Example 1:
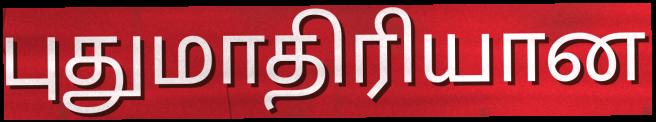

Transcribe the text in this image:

புதுமாதிரியான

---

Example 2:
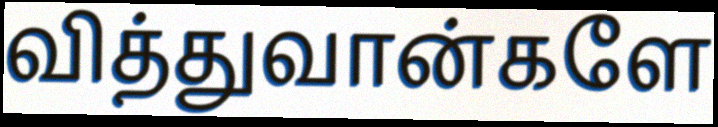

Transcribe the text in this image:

வித்துவான்களே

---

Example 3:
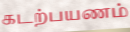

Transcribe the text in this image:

கடற்பயணம்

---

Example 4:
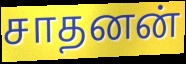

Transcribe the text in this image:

சாதனன்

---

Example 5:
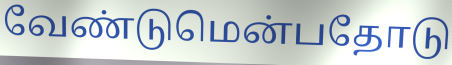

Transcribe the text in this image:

வேண்டுமென்பதோடு